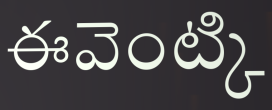
ఈవెంట్కి